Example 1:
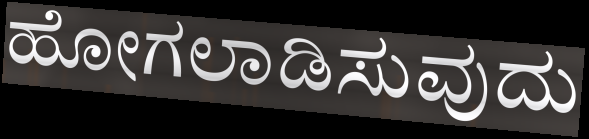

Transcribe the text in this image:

ಹೋಗಲಾಡಿಸುವುದು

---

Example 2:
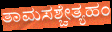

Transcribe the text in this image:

ತಾಮಸಶ್ಚೇತ್ಯಹಂ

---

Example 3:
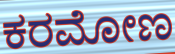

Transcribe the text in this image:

ಕರಮೋಣ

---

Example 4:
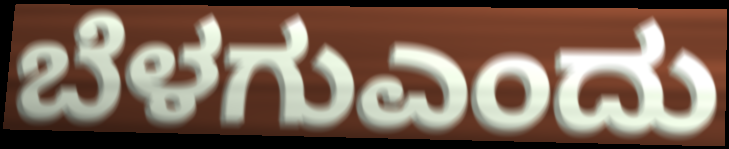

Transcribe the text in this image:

ಬೆಳಗುಎಂದು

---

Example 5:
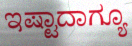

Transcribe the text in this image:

ಇಷ್ಟಾದಾಗ್ಯೂ